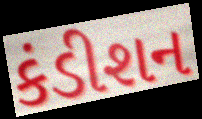
કંડીશન